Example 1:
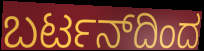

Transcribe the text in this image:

ಬರ್ಟನ್‌ದಿಂದ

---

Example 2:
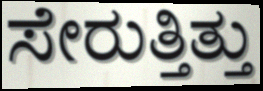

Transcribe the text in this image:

ಸೇರುತ್ತಿತ್ತು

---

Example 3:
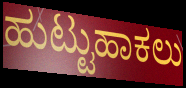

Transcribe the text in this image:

ಹುಟ್ಟುಹಾಕಲು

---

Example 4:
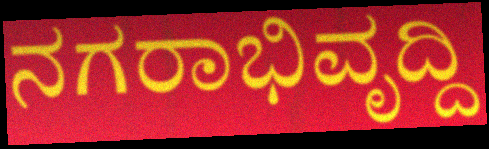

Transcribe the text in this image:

ನಗರಾಭಿವೃದ್ದಿ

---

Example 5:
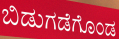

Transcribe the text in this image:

ಬಿಡುಗಡೆಗೊಂಡ